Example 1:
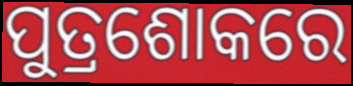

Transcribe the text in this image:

ପୁତ୍ରଶୋକରେ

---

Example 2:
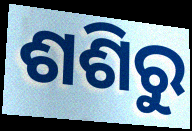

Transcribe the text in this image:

ଶଶିରୁ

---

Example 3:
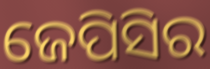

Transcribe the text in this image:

ଜେପିସିର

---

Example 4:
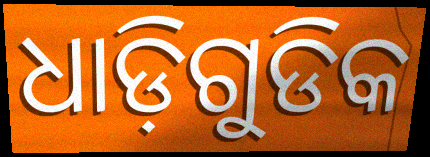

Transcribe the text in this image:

ଧାଡ଼ିଗୁଡିକ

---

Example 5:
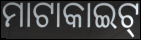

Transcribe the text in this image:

ମାଟାକାଇଟ୍